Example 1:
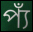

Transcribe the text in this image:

প্যঁ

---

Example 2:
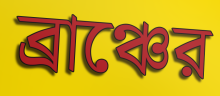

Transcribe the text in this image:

ব্রাঞ্চের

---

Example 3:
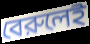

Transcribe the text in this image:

বেরুলেই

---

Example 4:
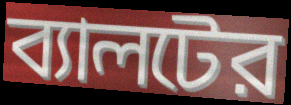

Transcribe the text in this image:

ব্যালটের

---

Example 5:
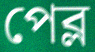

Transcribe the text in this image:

পেব্ল